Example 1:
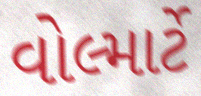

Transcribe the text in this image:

વોલ્માર્ટે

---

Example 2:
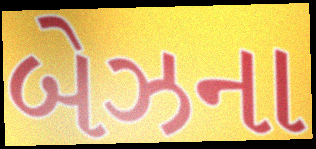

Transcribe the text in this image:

બેઝના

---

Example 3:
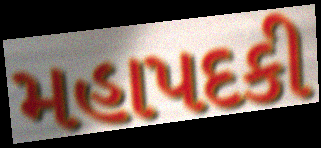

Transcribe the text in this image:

મહાપદકી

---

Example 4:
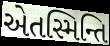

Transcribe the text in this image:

એતસ્મિન્તિ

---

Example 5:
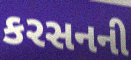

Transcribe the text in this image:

કરસનની